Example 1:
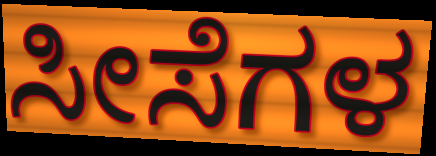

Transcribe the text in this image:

ಸೀಸೆಗಳ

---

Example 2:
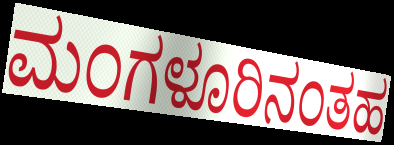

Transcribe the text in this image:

ಮಂಗಳೂರಿನಂತಹ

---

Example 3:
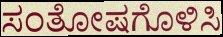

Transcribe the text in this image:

ಸಂತೋಷಗೊಳಿಸಿ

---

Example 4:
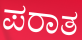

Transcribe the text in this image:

ಪರಾತ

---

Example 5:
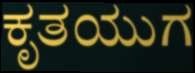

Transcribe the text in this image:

ಕೃತಯುಗ